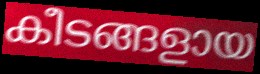
കീടങ്ങളായ